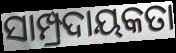
ସାମ୍ପ୍ରଦାୟକତା